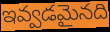
ఇవ్వడమైనది